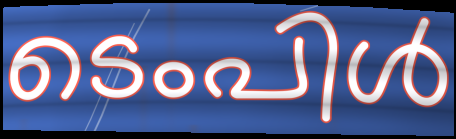
ടെംപിൾ